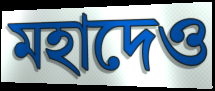
মহাদেও